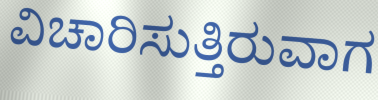
ವಿಚಾರಿಸುತ್ತಿರುವಾಗ